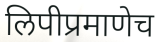
लिपीप्रमाणेच